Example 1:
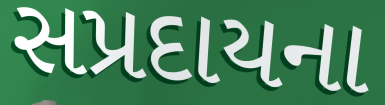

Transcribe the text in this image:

સપ્રદાયના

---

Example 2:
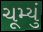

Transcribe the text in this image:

ચૂમ્યું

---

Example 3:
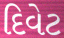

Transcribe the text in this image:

દિવેટ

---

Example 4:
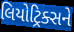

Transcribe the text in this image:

લિયોટ્રિક્સને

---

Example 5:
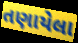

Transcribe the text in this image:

તણાયેલા